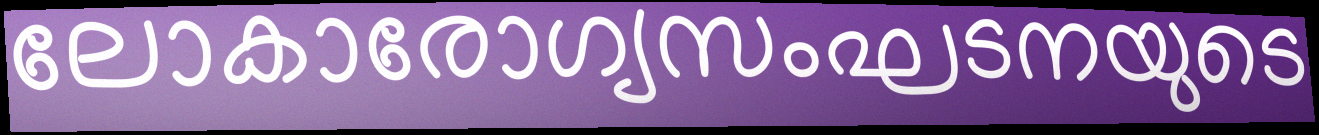
ലോകാരോഗ്യസംഘടനയുടെ